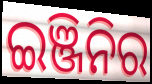
ଇଞ୍ଜିନିର